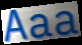
Aaa